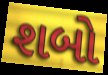
શબો